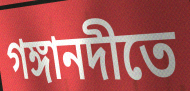
গঙ্গানদীতে